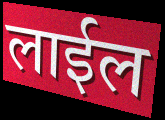
लाईल